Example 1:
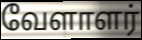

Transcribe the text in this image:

வேளாளர்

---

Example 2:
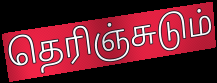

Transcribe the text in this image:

தெரிஞ்சுடும்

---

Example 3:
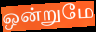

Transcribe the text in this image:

ஒன்றுமே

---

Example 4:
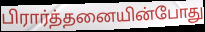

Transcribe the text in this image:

பிரார்த்தனையின்போது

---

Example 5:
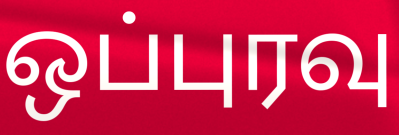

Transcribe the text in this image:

ஒப்புரவு